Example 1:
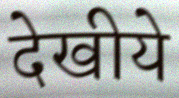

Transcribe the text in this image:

देखीये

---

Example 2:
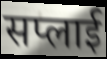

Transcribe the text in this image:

सप्लाई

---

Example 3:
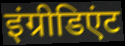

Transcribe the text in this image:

इंग्रीडिएंट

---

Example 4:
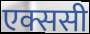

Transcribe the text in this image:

एक्ससी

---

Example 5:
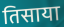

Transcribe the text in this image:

तिसाया